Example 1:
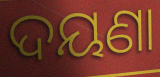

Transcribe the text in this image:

ଦୟଣା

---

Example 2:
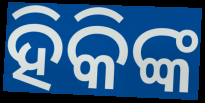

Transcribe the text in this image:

ହିକିଙ୍କ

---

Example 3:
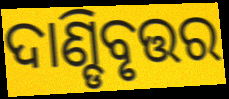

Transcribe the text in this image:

ଦାଣ୍ଡିବୃତ୍ତର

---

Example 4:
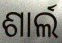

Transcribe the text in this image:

ଶାର୍ଲ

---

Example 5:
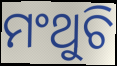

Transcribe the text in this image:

ମଂଥୁଚି